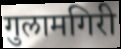
गुलामगिरी